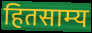
हितसाम्य